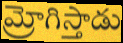
మ్రోగిస్తాడు